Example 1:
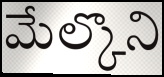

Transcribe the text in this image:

మేల్కొని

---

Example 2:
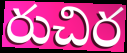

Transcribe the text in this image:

రుచిర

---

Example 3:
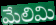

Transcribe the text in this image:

మేలిమి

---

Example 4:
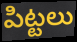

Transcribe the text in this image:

పిట్టలు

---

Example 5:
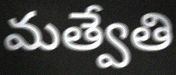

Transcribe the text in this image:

మత్వేతి